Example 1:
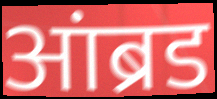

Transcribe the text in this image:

आंब्रड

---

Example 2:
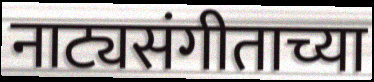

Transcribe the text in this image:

नाट्यसंगीताच्या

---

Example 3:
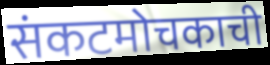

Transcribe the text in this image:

संकटमोचकाची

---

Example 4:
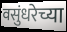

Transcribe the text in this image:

वसुंधरेच्या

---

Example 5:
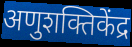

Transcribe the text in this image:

अणुशक्तिकेंद्र